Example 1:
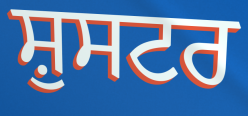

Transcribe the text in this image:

ਸ਼ੁਸਟਰ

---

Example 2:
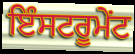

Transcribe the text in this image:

ਇੰਸਟਰੂਮੇਂਟ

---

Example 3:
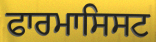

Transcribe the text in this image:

ਫਾਰਮਾਸਿਸਟ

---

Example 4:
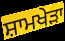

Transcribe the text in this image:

ਸ਼ਾਮਖੇੜਾ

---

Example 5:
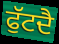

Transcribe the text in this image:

ਫੁੱਟਦੈ